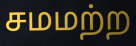
சமமற்ற